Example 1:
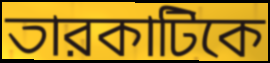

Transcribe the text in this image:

তারকাটিকে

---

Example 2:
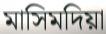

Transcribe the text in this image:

মাসিমদিয়া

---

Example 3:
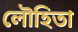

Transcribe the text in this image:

লৌহিতা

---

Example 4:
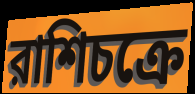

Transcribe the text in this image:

রাশিচক্রে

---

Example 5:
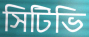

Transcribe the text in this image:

সিটিভি